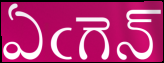
ఏఁగెన్